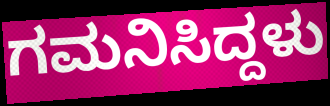
ಗಮನಿಸಿದ್ದಳು